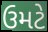
ઉમટે